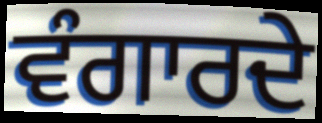
ਵੰਗਾਰਦੇ